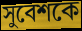
সুবেশকে